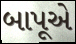
બાપૂએ